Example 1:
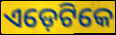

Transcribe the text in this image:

ଏଡ଼େଟିକେ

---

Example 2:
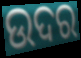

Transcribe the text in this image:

ଉଦର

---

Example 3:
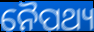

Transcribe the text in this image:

ନୈପଥ୍ୟ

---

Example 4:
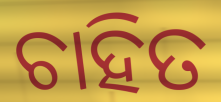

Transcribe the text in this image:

ଚାହିତ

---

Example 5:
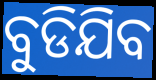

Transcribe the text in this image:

ବୁଡିଯିବ